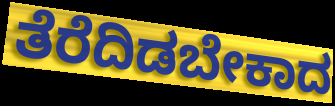
ತೆರೆದಿಡಬೇಕಾದ